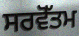
ਸਰਵੋੱਤਮ